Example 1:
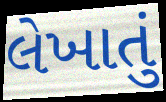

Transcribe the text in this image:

લેખાતું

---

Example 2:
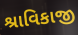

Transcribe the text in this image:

શ્રાવિકાજી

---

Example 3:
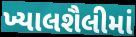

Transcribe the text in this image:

ખ્યાલશૈલીમાં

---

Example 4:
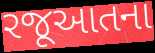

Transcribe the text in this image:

રજૂઆતના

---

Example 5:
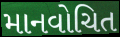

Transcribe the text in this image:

માનવોચિત